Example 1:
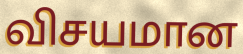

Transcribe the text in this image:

விசயமான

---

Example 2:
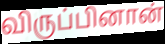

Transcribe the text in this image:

விருப்பினான்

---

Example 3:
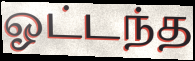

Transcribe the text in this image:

ஓட்டந்த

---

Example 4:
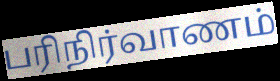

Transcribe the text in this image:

பரிநிர்வாணம்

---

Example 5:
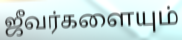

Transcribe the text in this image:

ஜீவர்களையும்